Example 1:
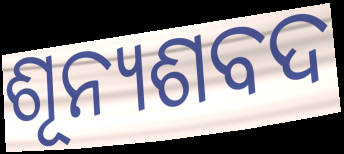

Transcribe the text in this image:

ଶୂନ୍ୟଶବଦ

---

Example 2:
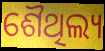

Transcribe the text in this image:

ଶୈଥିଲ୍ୟ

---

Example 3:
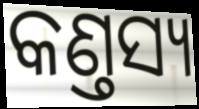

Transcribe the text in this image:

କଣ୍ତସ୍ୟ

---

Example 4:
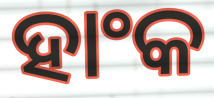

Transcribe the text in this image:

ହାଂକ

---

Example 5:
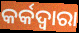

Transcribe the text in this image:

କର୍କଦ୍ଵାରା